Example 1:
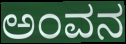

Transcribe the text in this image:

ಅಂವನ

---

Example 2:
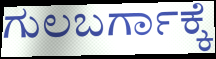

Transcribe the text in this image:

ಗುಲಬರ್ಗಾಕ್ಕೆ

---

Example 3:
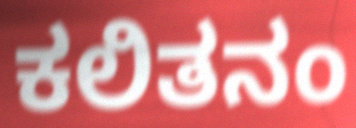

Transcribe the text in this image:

ಕಲಿತನಂ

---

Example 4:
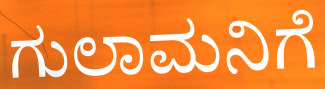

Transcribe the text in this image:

ಗುಲಾಮನಿಗೆ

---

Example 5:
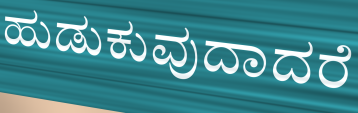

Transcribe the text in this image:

ಹುಡುಕುವುದಾದರೆ